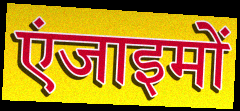
एंजाइमों